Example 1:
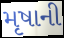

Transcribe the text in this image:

મૃષાની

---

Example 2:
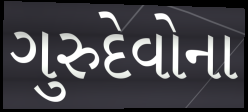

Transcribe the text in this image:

ગુરુદેવોના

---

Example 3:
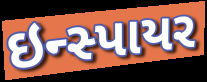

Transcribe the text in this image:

ઇન્સ્પાયર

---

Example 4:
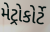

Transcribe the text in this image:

મેટ્રોકોર્ટે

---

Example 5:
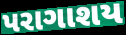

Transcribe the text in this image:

પરાગાશય